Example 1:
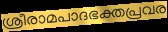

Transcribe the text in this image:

ശ്രീരാമപാദഭക്തപ്രവര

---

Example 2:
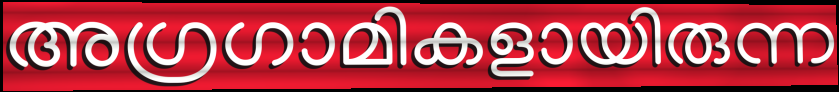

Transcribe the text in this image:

അഗ്രഗാമികളായിരുന്ന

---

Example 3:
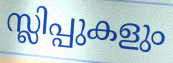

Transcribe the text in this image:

സ്ലിപ്പുകളും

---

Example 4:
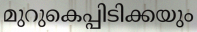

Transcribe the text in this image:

മുറുകെപ്പിടിക്കയും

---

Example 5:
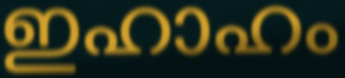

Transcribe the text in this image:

ഇഹാഹം